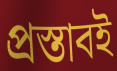
প্রস্তাবই